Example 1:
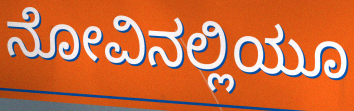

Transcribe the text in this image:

ನೋವಿನಲ್ಲಿಯೂ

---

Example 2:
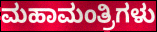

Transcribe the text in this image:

ಮಹಾಮಂತ್ರಿಗಳು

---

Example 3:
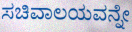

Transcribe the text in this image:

ಸಚಿವಾಲಯವನ್ನೇ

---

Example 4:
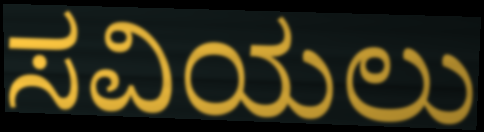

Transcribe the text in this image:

ಸವಿಯಲು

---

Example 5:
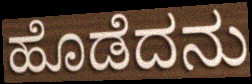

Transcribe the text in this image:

ಹೊಡೆದನು